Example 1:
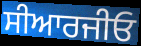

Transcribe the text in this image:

ਸੀਆਰਜੀਓ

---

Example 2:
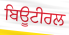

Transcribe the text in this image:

ਬਿਊਟੀਰਲ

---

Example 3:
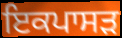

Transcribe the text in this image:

ਇਕਪਾਸੜ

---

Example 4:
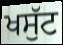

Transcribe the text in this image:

ਖਸੁੱਟ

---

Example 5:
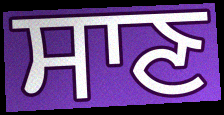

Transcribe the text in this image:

ਸਾਣ